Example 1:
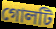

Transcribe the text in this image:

গোলটি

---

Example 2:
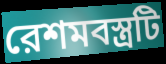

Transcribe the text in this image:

রেশমবস্ত্রটি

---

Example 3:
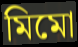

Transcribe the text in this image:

মিমো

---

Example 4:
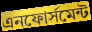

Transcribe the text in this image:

এনফোর্সমেন্ট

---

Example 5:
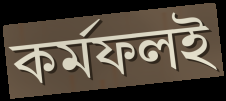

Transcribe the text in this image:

কর্মফলই